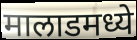
मालाडमध्ये